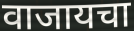
वाजायचा